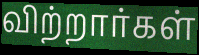
விற்றார்கள்